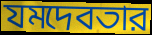
যমদেবতার